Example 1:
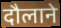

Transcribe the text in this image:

दौलाने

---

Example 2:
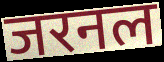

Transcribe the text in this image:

जरनल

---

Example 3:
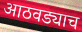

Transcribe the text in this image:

आठवड्याच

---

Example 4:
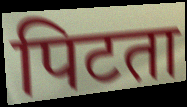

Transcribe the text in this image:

पिटता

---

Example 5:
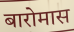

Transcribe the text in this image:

बारोमास